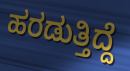
ಹರಡುತ್ತಿದ್ದೆ